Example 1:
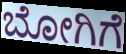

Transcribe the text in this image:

ಬೋಗಿಗೆ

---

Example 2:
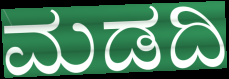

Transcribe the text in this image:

ಮಡದಿ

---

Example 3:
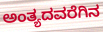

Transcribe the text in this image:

ಅಂತ್ಯದವರೆಗಿನ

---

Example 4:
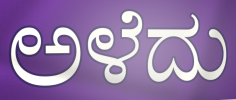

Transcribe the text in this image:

ಅಳೆದು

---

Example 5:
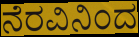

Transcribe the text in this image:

ನೆರವಿನಿಂದ